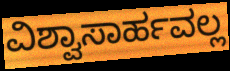
ವಿಶ್ವಾಸಾರ್ಹವಲ್ಲ